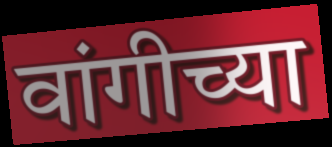
वांगीच्या